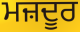
ਮਜ਼ਦੂਰ